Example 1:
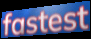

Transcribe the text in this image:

fastest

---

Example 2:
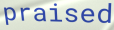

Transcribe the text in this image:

praised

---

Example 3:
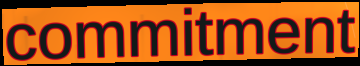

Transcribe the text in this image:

commitment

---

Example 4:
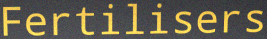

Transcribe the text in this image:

Fertilisers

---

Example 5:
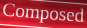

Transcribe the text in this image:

Composed